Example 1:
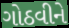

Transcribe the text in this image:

ગોઠવીને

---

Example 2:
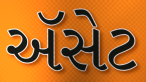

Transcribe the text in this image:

ઍસેટ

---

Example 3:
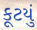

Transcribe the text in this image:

કૂટયું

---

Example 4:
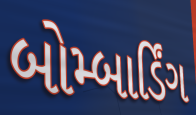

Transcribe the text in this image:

બોમ્બાર્ડિંગ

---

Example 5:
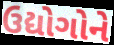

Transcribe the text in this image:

ઉદ્યોગોને